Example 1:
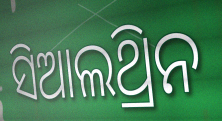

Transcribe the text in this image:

ସିଆଲଥ୍ରିନ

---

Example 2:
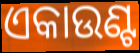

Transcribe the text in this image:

ଏକାଉଣ୍ଟ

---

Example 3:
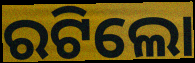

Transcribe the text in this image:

ରଟିଲୋ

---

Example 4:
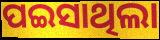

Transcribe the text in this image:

ପଇସାଥିଲା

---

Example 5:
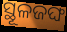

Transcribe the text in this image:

ସ୍ଥୂଳଜଙ୍ଘ